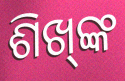
ଶିଖ୍‍ଙ୍କ